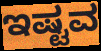
ಇಷ್ಟವ